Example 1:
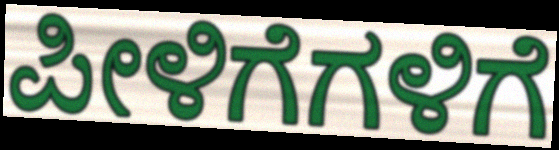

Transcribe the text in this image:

ಪೀಳಿಗೆಗಳಿಗೆ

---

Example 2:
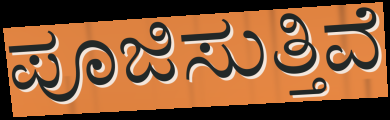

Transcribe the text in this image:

ಪೂಜಿಸುತ್ತಿವೆ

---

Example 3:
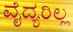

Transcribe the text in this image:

ವೈದ್ಯರಿಲ್ಲ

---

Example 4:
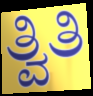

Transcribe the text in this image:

ತ್ವಿತಿ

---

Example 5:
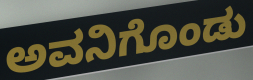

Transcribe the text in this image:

ಅವನಿಗೊಂಡು